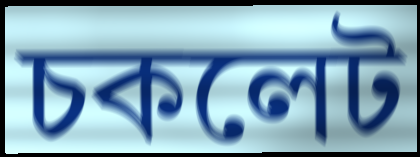
চকলেট